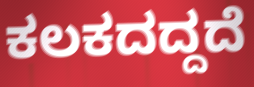
ಕಲಕದದ್ದದೆ